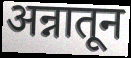
अन्नातून